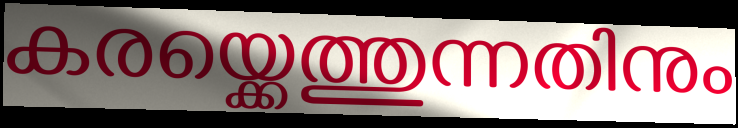
കരയ്ക്കെത്തുന്നതിനും